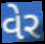
વેર